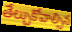
తేల్చుకోవాల్సిన